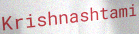
Krishnashtami